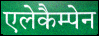
एलेकैम्पेन